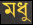
মধু